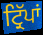
ਟ੍ਰਿੱਪਾਂ